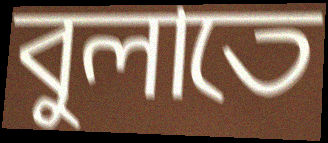
বুলাতে